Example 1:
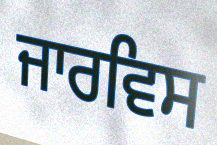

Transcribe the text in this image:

ਜਾਰਵਿਸ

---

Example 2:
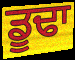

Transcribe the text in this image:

ਡੂਢਾ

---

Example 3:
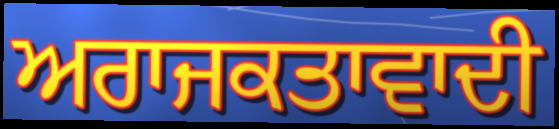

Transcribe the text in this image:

ਅਰਾਜਕਤਾਵਾਦੀ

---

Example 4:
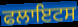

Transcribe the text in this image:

ਫਲਾਇਟਸ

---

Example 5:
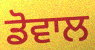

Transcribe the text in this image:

ਡੋਵਾਲ